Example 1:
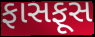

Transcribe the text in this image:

ફાસફૂસ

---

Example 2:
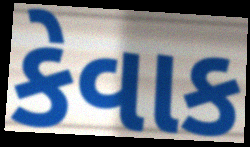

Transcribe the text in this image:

કેવાક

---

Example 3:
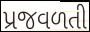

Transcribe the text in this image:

પ્રજવળતી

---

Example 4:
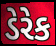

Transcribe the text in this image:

ડેરેક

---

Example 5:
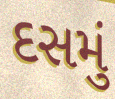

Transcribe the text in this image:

દસમું